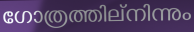
ഗോത്രത്തില്നിന്നും